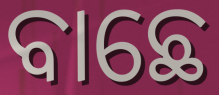
ବାଛେ